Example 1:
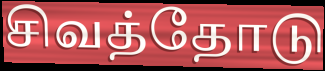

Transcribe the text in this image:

சிவத்தோடு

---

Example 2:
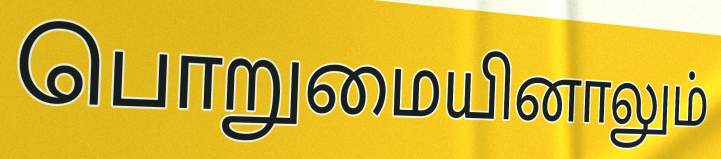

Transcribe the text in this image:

பொறுமையினாலும்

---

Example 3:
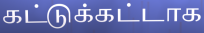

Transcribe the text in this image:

கட்டுக்கட்டாக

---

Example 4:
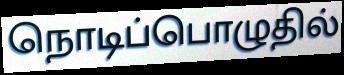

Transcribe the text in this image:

நொடிப்பொழுதில்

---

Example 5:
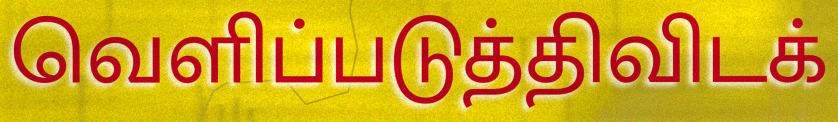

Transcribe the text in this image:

வெளிப்படுத்திவிடக்